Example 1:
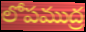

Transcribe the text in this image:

లోపముద్ర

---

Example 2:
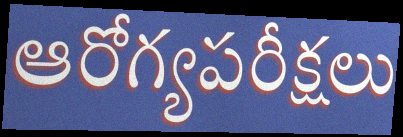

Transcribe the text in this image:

ఆరోగ్యపరీక్షలు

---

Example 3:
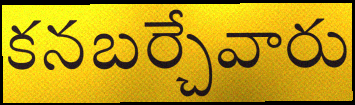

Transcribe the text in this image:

కనబర్చేవారు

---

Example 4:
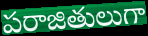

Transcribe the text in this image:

పరాజితులుగా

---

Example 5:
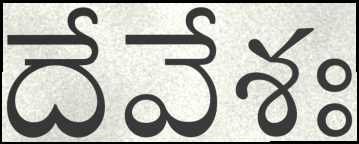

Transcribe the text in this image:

దేవేశః